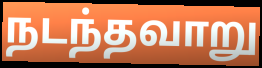
நடந்தவாறு